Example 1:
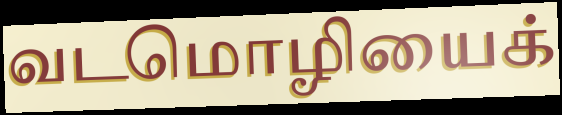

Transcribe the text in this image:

வடமொழியைக்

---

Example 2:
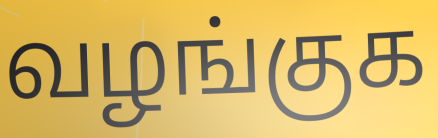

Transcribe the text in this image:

வழங்குக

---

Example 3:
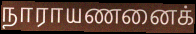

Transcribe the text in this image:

நாராயணனைக்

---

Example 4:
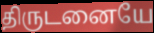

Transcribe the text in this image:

திருடனையே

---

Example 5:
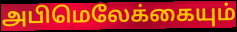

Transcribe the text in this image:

அபிமெலேக்கையும்